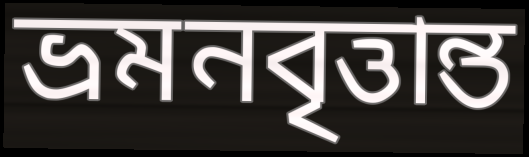
ভ্রমনবৃত্তান্ত